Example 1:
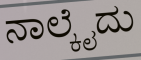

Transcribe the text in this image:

ನಾಲ್ಕೈದು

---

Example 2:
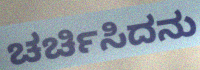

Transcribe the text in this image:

ಚರ್ಚಿಸಿದನು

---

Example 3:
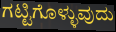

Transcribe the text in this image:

ಗಟ್ಟಿಗೊಳ್ಳುವುದು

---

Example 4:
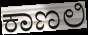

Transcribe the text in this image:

ಕಾಣಲಿ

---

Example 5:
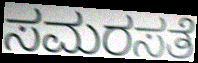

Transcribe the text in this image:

ಸಮರಸತೆ